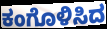
ಕಂಗೊಳಿಸಿದ